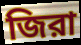
জিরা